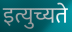
इत्युच्यते